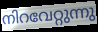
നിറവേറ്റുന്നു